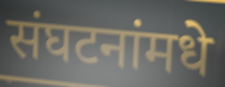
संघटनांमधे